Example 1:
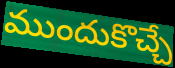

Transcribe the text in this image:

ముందుకొచ్చే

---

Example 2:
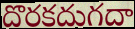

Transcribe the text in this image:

దొరకదుగదా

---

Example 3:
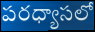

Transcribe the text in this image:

పరధ్యాసలో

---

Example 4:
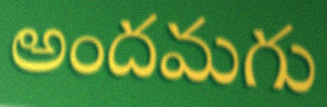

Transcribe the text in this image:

అందమగు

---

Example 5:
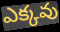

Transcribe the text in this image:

ఎక్కవు